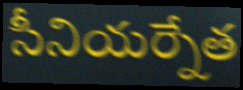
సీనియర్నేత